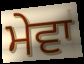
ਮੇਵਾ